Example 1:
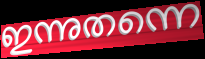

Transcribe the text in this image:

ഇന്നുതന്നെ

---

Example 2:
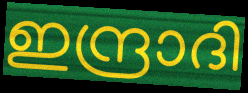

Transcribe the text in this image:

ഇന്ദ്രാദി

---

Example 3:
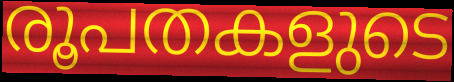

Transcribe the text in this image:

രൂപതകളുടെ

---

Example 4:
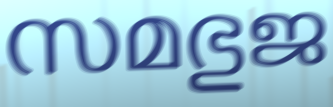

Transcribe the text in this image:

സമഭുജ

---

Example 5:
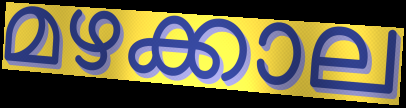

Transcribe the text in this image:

മഴക്കാല